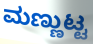
ಮಣ್ಣುಟ್ಟ